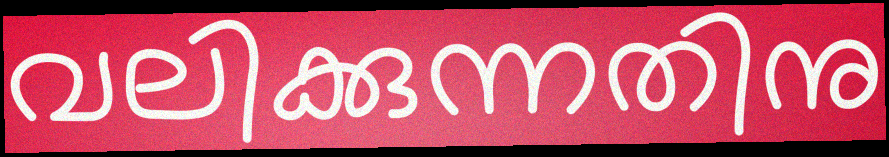
വലിക്കുന്നതിനു